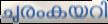
ചുരംകയറി